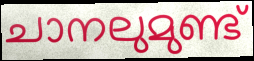
ചാനലുമുണ്ട്